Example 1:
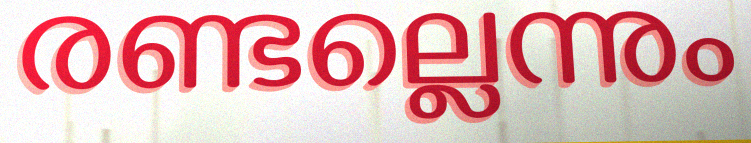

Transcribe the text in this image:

രണ്ടല്ലെന്നും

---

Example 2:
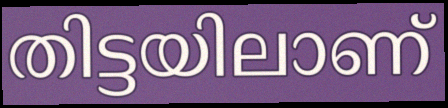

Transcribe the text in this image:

തിട്ടയിലാണ്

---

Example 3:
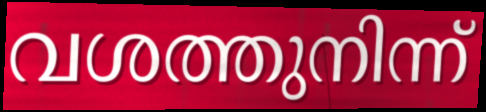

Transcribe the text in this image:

വശത്തുനിന്ന്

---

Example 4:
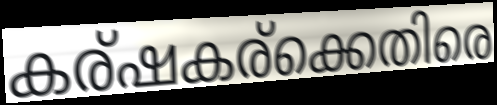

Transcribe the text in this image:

കര്ഷകര്ക്കെതിരെ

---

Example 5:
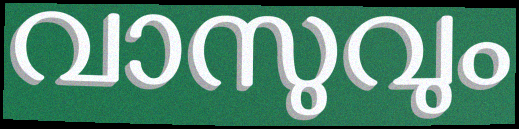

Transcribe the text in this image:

വാസുവും